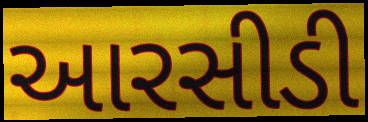
આરસીડી